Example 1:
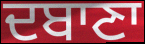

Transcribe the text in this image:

ਦਬਾਣਾ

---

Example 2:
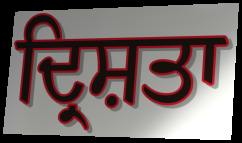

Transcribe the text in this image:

ਦ੍ਰਿਸ਼ਤਾ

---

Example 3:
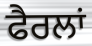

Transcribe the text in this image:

ਫੈਰਲਾਂ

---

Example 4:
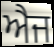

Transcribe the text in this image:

ਐਜ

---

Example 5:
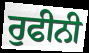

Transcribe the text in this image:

ਰੁਫੀਨੀ